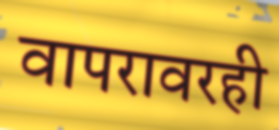
वापरावरही